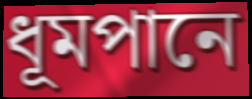
ধূমপানে